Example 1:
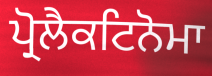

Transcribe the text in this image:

ਪ੍ਰੋਲੈਕਟਿਨੋਮਾ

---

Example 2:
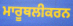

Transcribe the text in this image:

ਮਾਰੂਥਲੀਕਰਨ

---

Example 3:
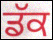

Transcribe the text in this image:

ਡੱਕ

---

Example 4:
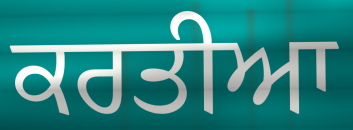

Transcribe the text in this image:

ਕਰਤੀਆ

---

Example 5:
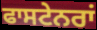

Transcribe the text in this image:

ਫਾਸਟੇਨਰਾਂ